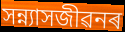
সন্ন্যাসজীৱনৰ